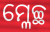
ମ୍ଳେଚ୍ଛ